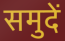
समुदें